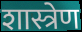
शास्त्रेण